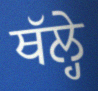
ਥੱਲ੍ਹੇ